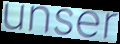
unser